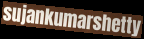
sujankumarshetty